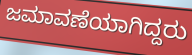
ಜಮಾವಣೆಯಾಗಿದ್ದರು